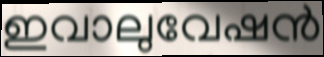
ഇവാലുവേഷൻ